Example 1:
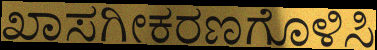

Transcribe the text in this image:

ಖಾಸಗೀಕರಣಗೊಳಿಸಿ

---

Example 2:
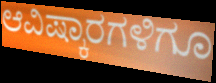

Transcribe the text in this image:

ಆವಿಷ್ಕಾರಗಳಿಗೂ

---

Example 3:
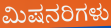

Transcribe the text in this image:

ಮಿಷನರಿಗಳು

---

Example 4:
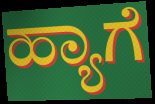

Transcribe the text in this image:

ಹ್ಯಾಗೆ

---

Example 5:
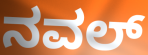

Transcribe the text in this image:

ನವಲ್